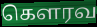
கெளரவ